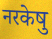
नरकेषु